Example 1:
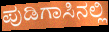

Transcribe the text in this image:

ಪುಡಿಗಾಸಿನಲ್ಲಿ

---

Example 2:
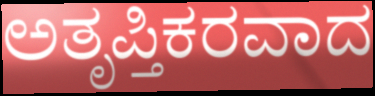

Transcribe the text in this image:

ಅತೃಪ್ತಿಕರವಾದ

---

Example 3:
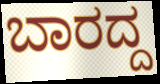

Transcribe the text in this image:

ಬಾರದ್ದ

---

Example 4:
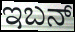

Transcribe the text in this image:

ಇಬನ್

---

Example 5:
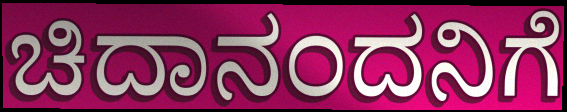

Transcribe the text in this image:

ಚಿದಾನಂದನಿಗೆ